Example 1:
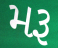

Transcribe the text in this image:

મરૂ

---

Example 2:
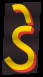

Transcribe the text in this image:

ડે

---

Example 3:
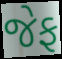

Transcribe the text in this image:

જેફ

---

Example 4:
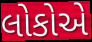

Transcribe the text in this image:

લોકોએ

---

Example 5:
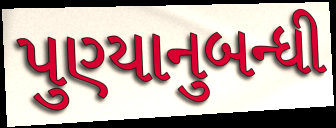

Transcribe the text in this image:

પુણ્યાનુબન્ધી